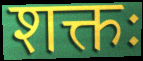
शक्तः